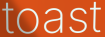
toast